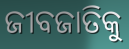
ଜୀବଜାତିକୁ